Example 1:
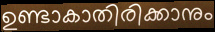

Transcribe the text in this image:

ഉണ്ടാകാതിരിക്കാനും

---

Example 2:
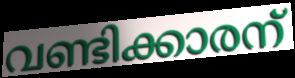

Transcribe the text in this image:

വണ്ടിക്കാരന്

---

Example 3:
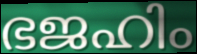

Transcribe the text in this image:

ഭജഹിം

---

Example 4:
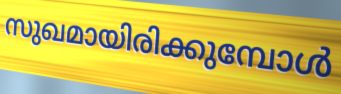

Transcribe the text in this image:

സുഖമായിരിക്കുമ്പോൾ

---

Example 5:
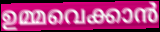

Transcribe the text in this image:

ഉമ്മവെക്കാൻ